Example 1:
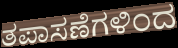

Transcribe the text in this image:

ತಪಾಸಣೆಗಳಿಂದ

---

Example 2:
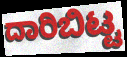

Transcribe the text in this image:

ದಾರಿಬಿಟ್ಟ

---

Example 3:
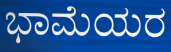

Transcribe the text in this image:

ಭಾಮೆಯರ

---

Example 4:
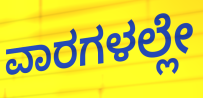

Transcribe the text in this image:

ವಾರಗಳಲ್ಲೇ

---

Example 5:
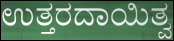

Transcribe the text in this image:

ಉತ್ತರದಾಯಿತ್ವ